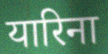
यारिना